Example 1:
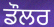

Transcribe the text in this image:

ਡੌਲਰ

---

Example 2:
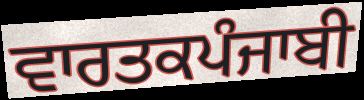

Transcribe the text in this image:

ਵਾਰਤਕਪੰਜਾਬੀ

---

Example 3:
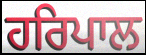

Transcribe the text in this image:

ਹਰਿਪਾਲ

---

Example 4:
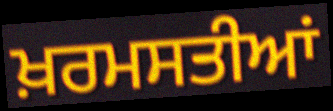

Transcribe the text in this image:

ਖ਼ਰਮਸਤੀਆਂ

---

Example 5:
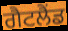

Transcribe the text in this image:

ਗੈਟਲੈਂਡ